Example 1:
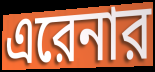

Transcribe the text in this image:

এরেনার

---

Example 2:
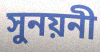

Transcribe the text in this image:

সুনয়নী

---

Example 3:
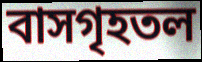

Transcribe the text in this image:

বাসগৃহতল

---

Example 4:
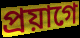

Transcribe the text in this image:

প্রয়াগে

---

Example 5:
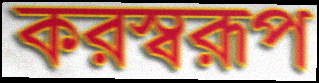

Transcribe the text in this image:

করস্বরূপ